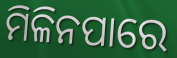
ମିଳିନପାରେ